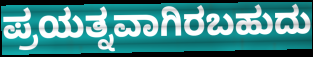
ಪ್ರಯತ್ನವಾಗಿರಬಹುದು